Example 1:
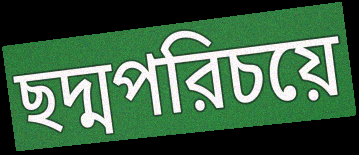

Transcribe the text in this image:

ছদ্মপরিচয়ে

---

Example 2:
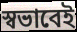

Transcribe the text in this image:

স্বভাবেই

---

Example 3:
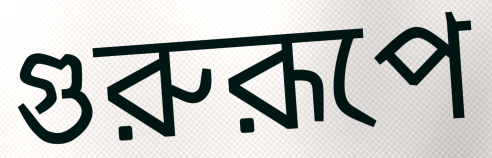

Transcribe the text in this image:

গুরুরূপে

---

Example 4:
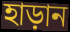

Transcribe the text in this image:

হাড়ান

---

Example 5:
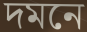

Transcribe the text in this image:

দমনে